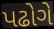
પઢોગે